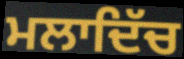
ਮਲਾਦਿੱਚ